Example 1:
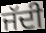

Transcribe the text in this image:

ਜੱਦੀ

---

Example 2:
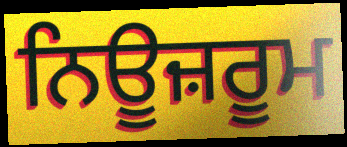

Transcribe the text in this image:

ਨਿਊਜ਼ਰੂਮ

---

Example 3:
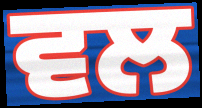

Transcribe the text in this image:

ਵਲ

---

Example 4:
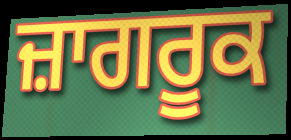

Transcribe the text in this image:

ਜ਼ਾਗਰੂਕ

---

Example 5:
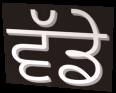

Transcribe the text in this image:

ਵੱਡੇ